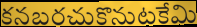
కనబరచుకొనుటకేమి